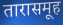
तारासमूह